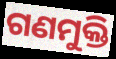
ଗଣମୁକ୍ତି